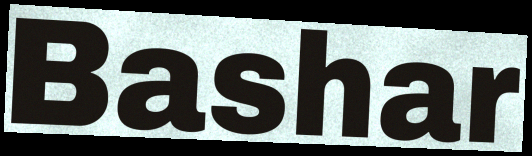
Bashar